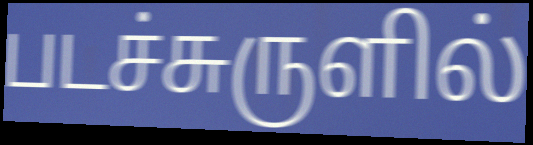
படச்சுருளில்